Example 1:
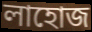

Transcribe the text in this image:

লাহোজ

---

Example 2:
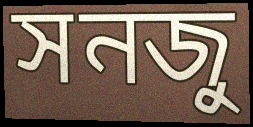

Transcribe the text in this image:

সনজু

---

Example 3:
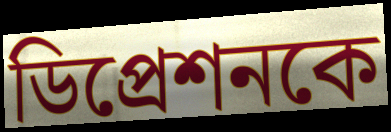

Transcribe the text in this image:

ডিপ্রেশনকে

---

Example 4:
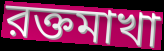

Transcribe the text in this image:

রক্তমাখা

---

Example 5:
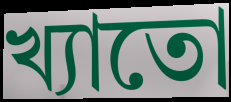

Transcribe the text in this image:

খ্যাতো